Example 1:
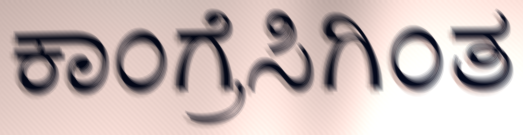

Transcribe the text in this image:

ಕಾಂಗ್ರೆಸಿಗಿಂತ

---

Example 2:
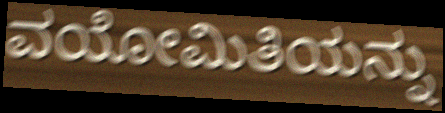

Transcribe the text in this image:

ವಯೋಮಿತಿಯನ್ನು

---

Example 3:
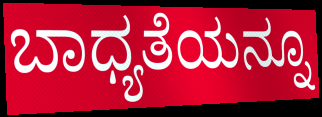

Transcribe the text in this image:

ಬಾಧ್ಯತೆಯನ್ನೂ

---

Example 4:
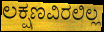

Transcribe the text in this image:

ಲಕ್ಷಣವಿರಲಿಲ್ಲ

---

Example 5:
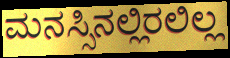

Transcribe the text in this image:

ಮನಸ್ಸಿನಲ್ಲಿರಲಿಲ್ಲ